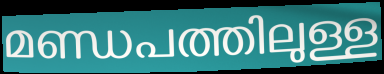
മണ്ഡപത്തിലുള്ള